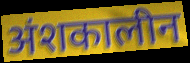
अंशकालीन